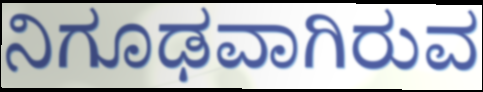
ನಿಗೂಢವಾಗಿರುವ